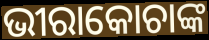
ଭୀରାକୋଚାଙ୍କ